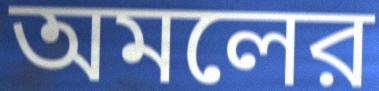
অমলের